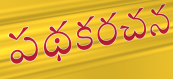
పథకరచన